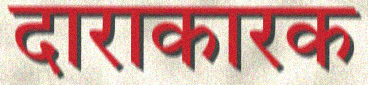
दाराकारक